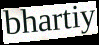
bhartiy